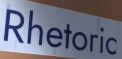
Rhetoric